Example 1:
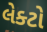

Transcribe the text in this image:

લેક્ટો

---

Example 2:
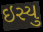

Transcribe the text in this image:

ઇસ્યુ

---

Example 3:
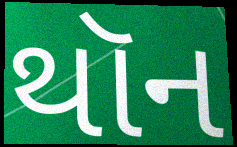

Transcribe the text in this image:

થૉન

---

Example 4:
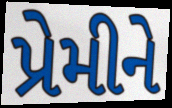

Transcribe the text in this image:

પ્રેમીને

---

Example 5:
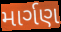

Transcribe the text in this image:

માર્ગણ